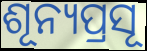
ଶୂନ୍ୟପ୍ରସୂ